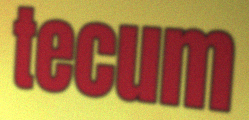
tecum